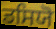
ਡਸਿਯੋ